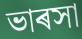
ভাৰসা